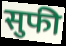
सुफी